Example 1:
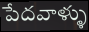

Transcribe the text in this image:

పేదవాళ్ళు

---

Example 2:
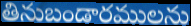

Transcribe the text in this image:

తినుబండారములను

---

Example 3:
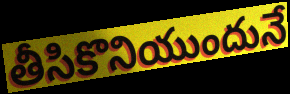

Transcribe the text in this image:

తీసికొనియుందునే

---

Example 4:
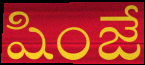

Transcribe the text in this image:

షింజే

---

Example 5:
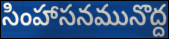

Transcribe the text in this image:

సింహాసనమునొద్ద